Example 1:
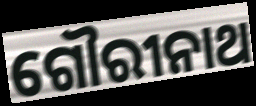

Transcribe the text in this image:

ଗୌରୀନାଥ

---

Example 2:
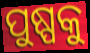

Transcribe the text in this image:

ପୁଷ୍ପକୁ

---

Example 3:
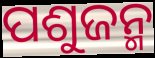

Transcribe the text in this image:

ପଶୁଜନ୍ମ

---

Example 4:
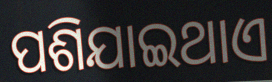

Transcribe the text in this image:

ପଶିଯାଇଥାଏ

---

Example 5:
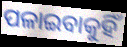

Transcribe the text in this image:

ପଳାଇବାକୁହିଁ